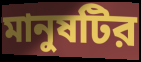
মানুষটির